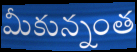
మీకున్నంత